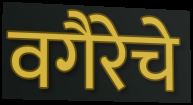
वगैरेचे